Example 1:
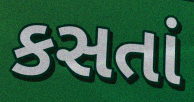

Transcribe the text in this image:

કસતાં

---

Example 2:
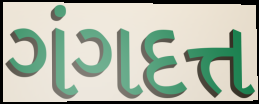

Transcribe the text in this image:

ગંગદત્ત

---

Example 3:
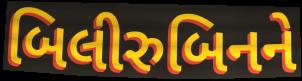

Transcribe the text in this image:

બિલીરુબિનને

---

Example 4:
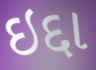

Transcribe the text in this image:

ઇદ્દા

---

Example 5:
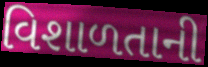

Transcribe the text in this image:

વિશાળતાની